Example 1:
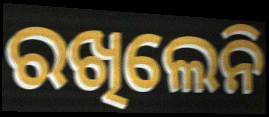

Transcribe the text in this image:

ରଖିଲେନି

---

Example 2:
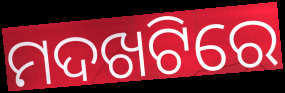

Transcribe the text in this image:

ମଦଖଟିରେ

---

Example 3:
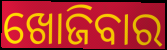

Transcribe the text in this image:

ଖୋଜିବାର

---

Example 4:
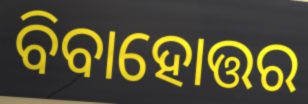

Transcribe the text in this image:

ବିବାହୋତ୍ତର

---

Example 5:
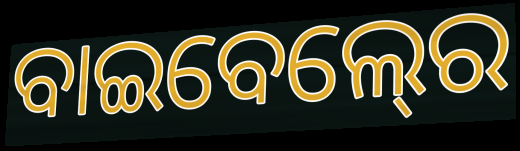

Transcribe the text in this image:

ବାଇବେଲ୍‍ରେ